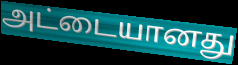
அட்டையானது